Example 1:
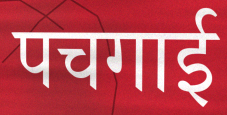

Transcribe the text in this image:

पचगाई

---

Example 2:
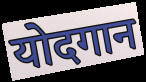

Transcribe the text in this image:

योदगान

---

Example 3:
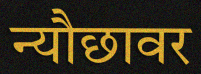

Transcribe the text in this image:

न्यौछावर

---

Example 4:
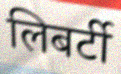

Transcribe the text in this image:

लिबर्टी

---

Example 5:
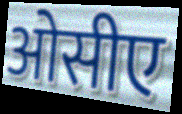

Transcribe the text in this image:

ओसीए